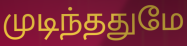
முடிந்ததுமே